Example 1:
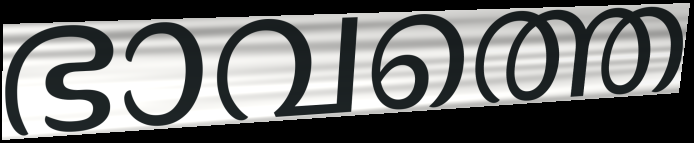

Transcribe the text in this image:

ഭാവത്തെ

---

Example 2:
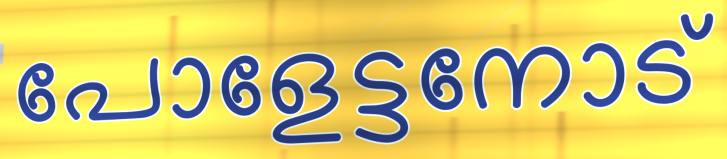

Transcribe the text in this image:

പോളേട്ടനോട്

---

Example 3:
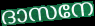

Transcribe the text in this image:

ദാസനേ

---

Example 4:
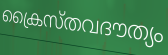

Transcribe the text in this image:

ക്രൈസ്തവദൗത്യം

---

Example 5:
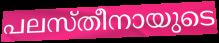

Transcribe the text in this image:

പലസ്തീനായുടെ